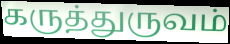
கருத்துருவம்